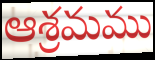
ఆశ్రమము